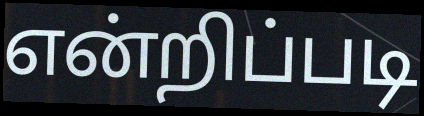
என்றிப்படி